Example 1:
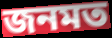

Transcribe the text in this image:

জনমত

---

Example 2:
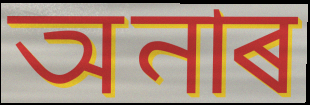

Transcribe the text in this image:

অনাৰ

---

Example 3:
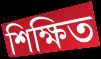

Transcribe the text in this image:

শিক্ষিত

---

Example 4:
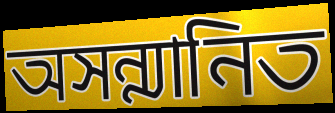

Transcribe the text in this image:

অসন্মানিত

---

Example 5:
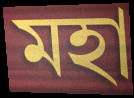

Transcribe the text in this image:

মহা